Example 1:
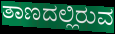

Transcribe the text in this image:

ತಾಣದಲ್ಲಿರುವ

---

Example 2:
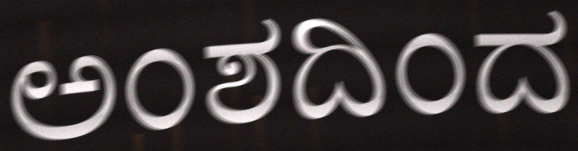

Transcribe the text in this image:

ಅಂಶದಿಂದ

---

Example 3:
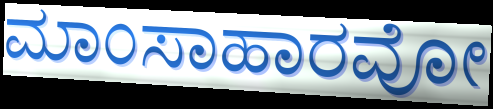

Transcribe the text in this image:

ಮಾಂಸಾಹಾರವೋ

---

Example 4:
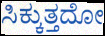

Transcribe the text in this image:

ಸಿಕ್ಕುತ್ತದೋ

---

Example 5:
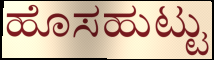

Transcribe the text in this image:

ಹೊಸಹುಟ್ಟು